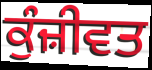
ਕੁੰਜ਼ੀਵਤ